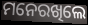
ମନେରଖିଲେ